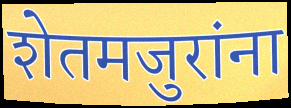
शेतमजुरांना